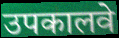
उपकालवे